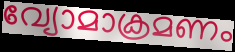
വ്യോമാക്രമണം